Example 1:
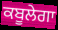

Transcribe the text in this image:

ਕਬੂਲੇਗਾ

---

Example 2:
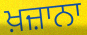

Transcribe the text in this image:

ਖ਼ਜ਼ਾਨਾ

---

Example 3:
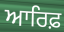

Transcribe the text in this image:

ਆਰਿਫ਼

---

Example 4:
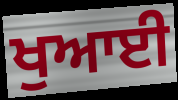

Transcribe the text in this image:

ਖੁਆਈ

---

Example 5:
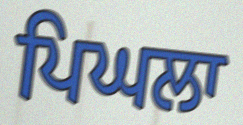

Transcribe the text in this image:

ਪਿਘਲਾ